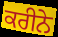
ਕਰੀਨੇ